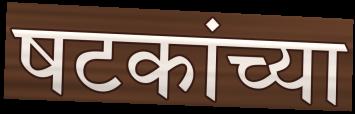
षटकांच्या